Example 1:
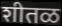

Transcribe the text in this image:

शीतळ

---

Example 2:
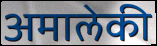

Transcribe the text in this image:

अमालेकी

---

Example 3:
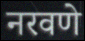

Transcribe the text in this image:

नरवणे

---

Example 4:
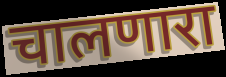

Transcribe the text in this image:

चालणारा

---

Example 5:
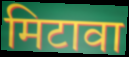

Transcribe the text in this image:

मिटावा